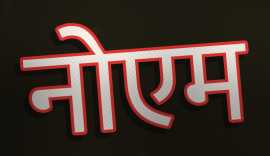
नोएम